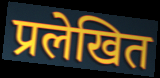
प्रलेखित